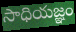
సాధియజ్ఞం